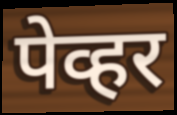
पेव्हर